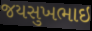
જયસુખભાઇ